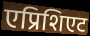
एप्रिशिएट